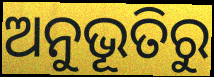
ଅନୁଭୂତିରୁ